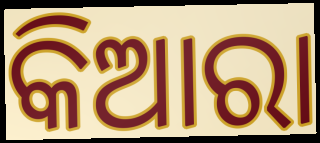
କିଆରା